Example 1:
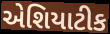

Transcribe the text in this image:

એશિયાટીક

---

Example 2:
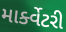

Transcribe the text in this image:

માર્ક્વેટરી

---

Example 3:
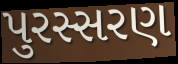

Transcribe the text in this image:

પુરસ્સરણ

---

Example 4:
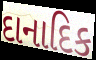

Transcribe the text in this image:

દાનાદિક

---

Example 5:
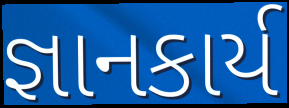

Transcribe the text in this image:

જ્ઞાનકાર્ય